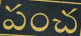
పంచ